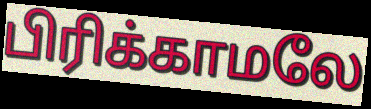
பிரிக்காமலே